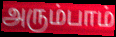
அரும்பாம்